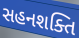
સહનશક્તિ